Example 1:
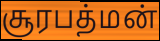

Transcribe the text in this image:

சூரபத்மன்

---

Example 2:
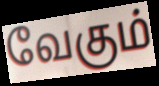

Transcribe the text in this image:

வேகும்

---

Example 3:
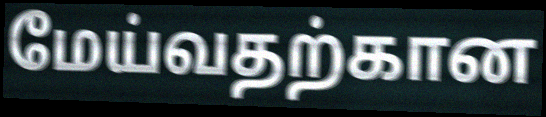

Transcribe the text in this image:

மேய்வதற்கான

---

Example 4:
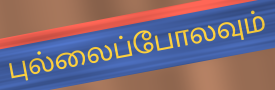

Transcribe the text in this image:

புல்லைப்போலவும்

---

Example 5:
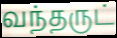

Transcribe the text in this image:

வந்தருட்